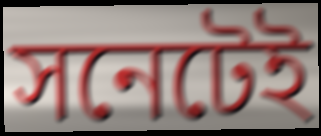
সনেটেই